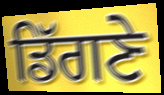
ਡਿੱਗਣੇ